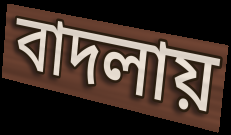
বাদলায়